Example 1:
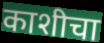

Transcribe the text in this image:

काशीचा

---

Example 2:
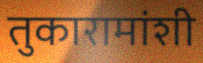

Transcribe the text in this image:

तुकारामांशी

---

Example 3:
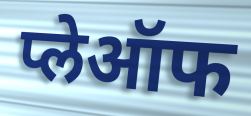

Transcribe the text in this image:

प्लेऑफ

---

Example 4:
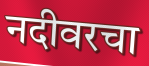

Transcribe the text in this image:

नदीवरचा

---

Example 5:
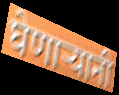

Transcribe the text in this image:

घेणाऱ्यानी